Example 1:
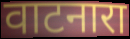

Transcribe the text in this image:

वाटनारा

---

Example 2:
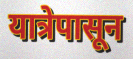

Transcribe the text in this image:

यात्रेपासून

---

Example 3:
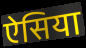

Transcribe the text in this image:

ऐसिया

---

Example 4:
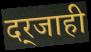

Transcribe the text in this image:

दर्जाही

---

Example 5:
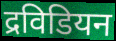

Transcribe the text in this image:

द्रविडियन